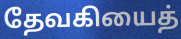
தேவகியைத்